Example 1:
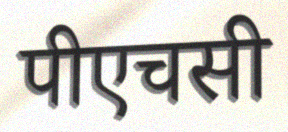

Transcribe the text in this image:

पीएचसी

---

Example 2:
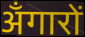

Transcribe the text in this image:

अँगारों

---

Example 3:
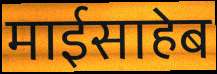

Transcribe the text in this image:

माईसाहेब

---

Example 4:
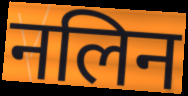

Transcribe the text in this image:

नलिन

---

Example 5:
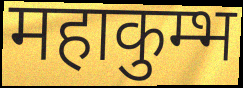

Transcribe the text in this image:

महाकुम्भ